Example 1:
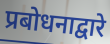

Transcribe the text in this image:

प्रबोधनाद्वारे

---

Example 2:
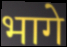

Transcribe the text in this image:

भागे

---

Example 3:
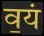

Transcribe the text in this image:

व॒यं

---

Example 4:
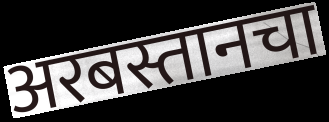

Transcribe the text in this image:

अरबस्तानचा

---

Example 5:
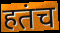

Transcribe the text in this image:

हतंच